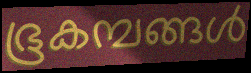
ഭൂകമ്പങ്ങൾ